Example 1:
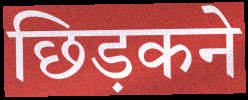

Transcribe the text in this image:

छिड़कने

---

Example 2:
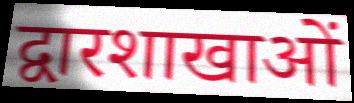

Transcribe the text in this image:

द्वारशाखाओं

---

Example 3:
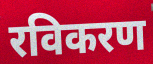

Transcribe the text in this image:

रविकरण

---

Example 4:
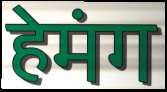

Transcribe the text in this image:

हेमंग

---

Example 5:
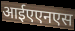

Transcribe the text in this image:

आईएएनएस